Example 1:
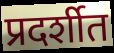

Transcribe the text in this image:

प्रदर्शीत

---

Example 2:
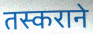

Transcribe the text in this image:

तस्कराने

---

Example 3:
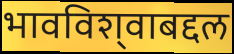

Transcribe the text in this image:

भावविश्वाबद्दल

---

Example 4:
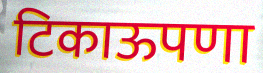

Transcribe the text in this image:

टिकाऊपणा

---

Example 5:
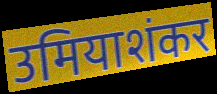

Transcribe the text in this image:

उमियाशंकर